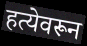
हत्येवरून